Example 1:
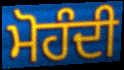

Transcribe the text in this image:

ਮੋਹੰਦੀ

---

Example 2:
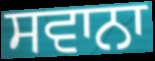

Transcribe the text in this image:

ਸਵਾਨਾ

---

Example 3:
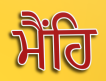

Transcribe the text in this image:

ਮੈਂਹਿ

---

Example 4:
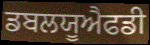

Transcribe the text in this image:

ਡਬਲਯੂਐਫਡੀ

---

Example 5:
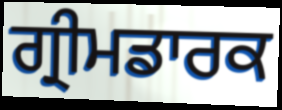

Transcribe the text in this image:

ਗ੍ਰੀਮਡਾਰਕ